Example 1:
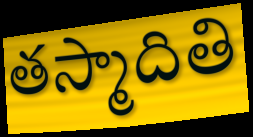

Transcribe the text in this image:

తస్మాదితి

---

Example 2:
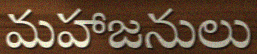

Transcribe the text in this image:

మహాజనులు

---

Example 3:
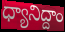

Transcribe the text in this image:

ధ్యానిద్దాం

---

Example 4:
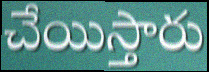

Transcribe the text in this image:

చేయిస్తారు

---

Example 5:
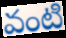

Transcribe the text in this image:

వంటి